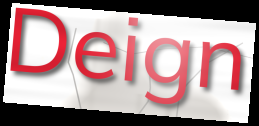
Deign